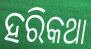
ହରିକଥା